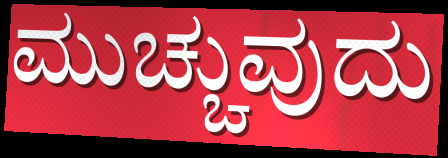
ಮುಚ್ಚುವುದು